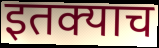
इतक्याच